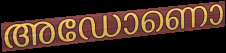
അഡോണൊ